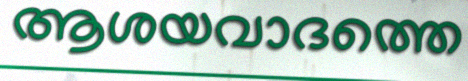
ആശയവാദത്തെ